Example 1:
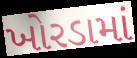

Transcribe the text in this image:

ખોરડામાં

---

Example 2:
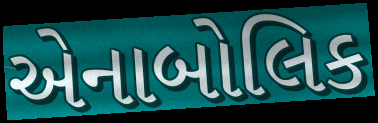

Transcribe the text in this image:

એનાબોલિક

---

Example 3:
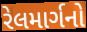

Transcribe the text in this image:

રેલમાર્ગનો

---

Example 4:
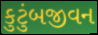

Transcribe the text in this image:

કુટુંબજીવન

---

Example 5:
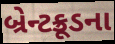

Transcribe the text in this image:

બ્રેન્ટક્રૂડના